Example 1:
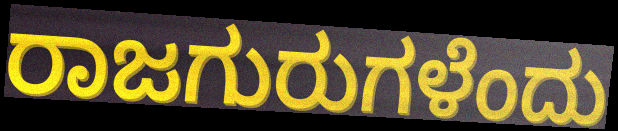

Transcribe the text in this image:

ರಾಜಗುರುಗಳೆಂದು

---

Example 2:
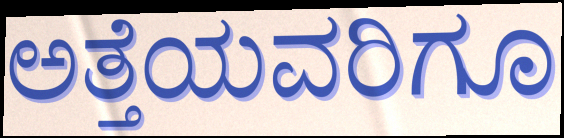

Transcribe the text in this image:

ಅತ್ತೆಯವರಿಗೂ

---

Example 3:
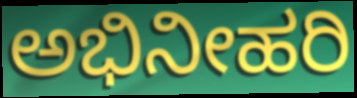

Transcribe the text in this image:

ಅಭಿನೀಹರಿ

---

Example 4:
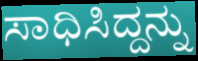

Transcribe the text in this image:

ಸಾಧಿಸಿದ್ದನ್ನು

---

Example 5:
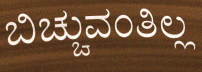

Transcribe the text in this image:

ಬಿಚ್ಚುವಂತಿಲ್ಲ